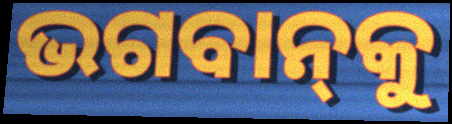
ଭଗବାନ୍‌କୁ